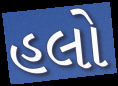
હલો